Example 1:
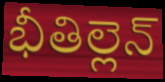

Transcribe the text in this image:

భీతిల్లెన్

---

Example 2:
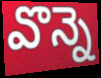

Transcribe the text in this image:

వొన్నె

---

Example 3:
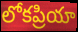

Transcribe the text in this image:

లోకప్రియా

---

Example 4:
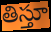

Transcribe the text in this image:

తిస్తూ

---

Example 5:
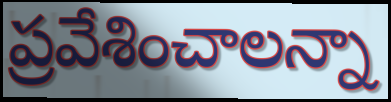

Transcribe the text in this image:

ప్రవేశించాలన్నా